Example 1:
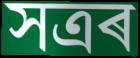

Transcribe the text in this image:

সত্ৰৰ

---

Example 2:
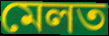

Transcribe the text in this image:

মেলত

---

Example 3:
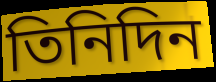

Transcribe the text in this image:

তিনিদিন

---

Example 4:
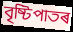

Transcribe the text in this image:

বৃষ্টিপাতৰ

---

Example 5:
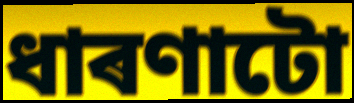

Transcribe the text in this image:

ধাৰণাটো